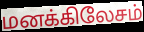
மனக்கிலேசம்